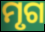
ମୃଗ